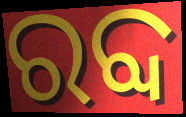
ରବ୍ଦ